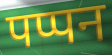
पप्पन